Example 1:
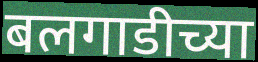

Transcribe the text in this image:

बलगाडीच्या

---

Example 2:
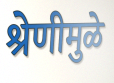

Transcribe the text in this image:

श्रेणीमुळे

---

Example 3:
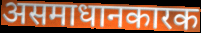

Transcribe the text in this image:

असमाधानकारक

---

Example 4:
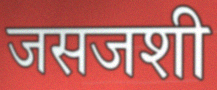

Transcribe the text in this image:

जसजशी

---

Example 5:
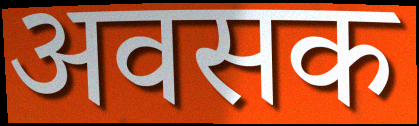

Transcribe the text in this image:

अवसक